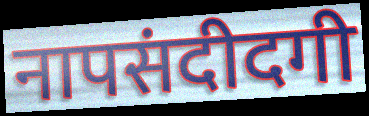
नापसंदीदगी